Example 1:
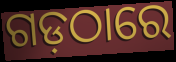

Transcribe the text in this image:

ଗଡ଼ଠାରେ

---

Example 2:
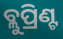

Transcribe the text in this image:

ବ୍ଲୁପ୍ରିଣ୍ଟ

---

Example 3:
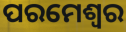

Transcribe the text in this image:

ପରମେଶ୍ୱର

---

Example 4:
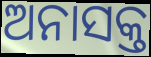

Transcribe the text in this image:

ଅନାସକ୍ତ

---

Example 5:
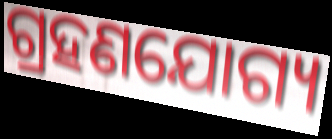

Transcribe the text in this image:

ଗ୍ରହଣଯୋଗ୍ୟ